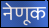
नेणूक